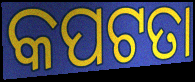
କପଟତା